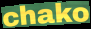
chako